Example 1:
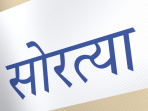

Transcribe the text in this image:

सोरत्या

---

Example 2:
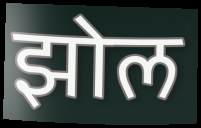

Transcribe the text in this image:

झोल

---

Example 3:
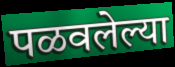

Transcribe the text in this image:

पळवलेल्या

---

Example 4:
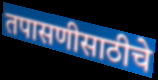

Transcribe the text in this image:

तपासणीसाठीचे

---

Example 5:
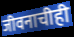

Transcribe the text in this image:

जीवनाचीही